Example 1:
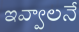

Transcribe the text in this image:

ఇవ్వాలనే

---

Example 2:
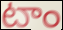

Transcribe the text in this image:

టాం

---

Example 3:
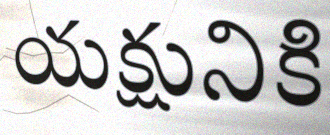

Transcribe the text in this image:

యక్షునికి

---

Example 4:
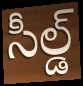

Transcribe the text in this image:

సీల్డ్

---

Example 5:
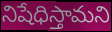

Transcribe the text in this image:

నిషేధిస్తామని